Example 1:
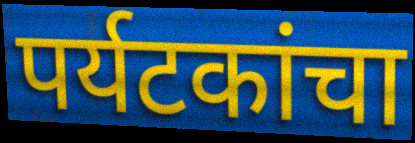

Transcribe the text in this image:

पर्यटकांचा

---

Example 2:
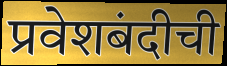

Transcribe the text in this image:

प्रवेशबंदीची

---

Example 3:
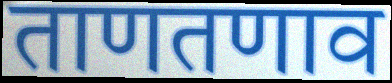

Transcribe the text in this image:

ताणतणाव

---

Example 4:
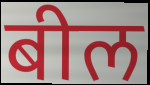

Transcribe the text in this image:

बील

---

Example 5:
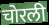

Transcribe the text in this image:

चोरली